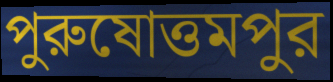
পুরুষোত্তমপুর